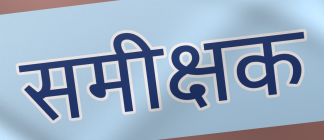
समीक्षक